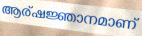
ആര്ഷജ്ഞാനമാണ്